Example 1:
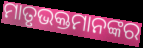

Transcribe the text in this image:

ମାତୃଭକ୍ତମାନଙ୍କର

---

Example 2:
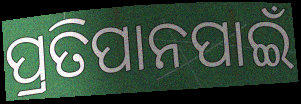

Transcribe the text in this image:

ପ୍ରତିପାନପାଇଁ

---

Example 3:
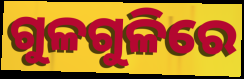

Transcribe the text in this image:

ଗୁଳଗୁଳିରେ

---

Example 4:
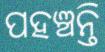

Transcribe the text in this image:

ପହଞ୍ଚନ୍ତି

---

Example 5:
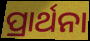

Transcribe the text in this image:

ପ୍ରାର୍ଥନା